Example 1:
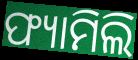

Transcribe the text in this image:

ଫ୍ୟାମିଲି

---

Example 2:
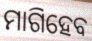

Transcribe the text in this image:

ମାଗିହେବ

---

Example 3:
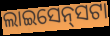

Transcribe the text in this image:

ଲାଇସେନ୍‍ସଟା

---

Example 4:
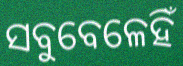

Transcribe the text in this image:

ସବୁବେଳେହିଁ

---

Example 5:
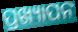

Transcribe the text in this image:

ପ୍ରଖ୍ୟାପନ